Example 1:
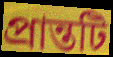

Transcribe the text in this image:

প্রান্তটি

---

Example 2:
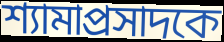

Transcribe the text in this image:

শ্যামাপ্রসাদকে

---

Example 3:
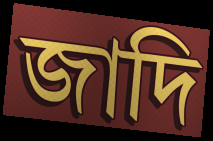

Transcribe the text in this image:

জাদি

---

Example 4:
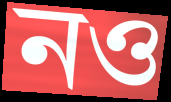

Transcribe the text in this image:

নও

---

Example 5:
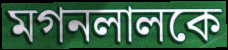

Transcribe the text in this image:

মগনলালকে